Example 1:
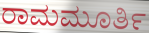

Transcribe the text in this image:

ರಾಮಮೂರ್ತಿ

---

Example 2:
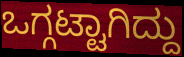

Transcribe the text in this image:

ಒಗ್ಗಟ್ಟಾಗಿದ್ದು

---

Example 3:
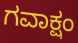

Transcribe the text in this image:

ಗವಾಕ್ಷಂ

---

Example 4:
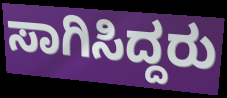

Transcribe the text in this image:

ಸಾಗಿಸಿದ್ದರು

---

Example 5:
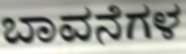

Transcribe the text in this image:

ಬಾವನೆಗಳ